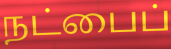
நட்பைப்